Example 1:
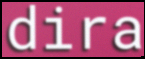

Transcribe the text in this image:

dira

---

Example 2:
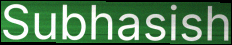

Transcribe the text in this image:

Subhasish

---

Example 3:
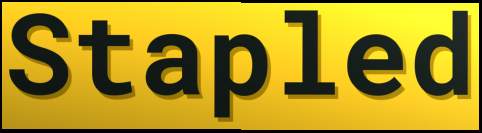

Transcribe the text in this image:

Stapled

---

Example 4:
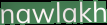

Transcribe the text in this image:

nawlakh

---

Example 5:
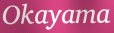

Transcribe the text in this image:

Okayama